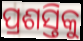
ପ୍ରଶସ୍ତିକୁ